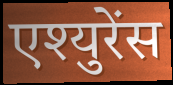
एश्युरेंस